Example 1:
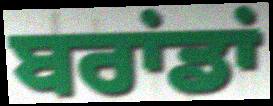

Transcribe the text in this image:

ਬਰਾਂਡਾਂ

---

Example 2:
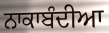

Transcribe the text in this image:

ਨਾਕਾਬੰਦੀਆ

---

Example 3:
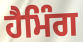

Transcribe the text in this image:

ਹੈਮਿੰਗ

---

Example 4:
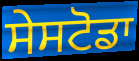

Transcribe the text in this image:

ਸੇਸਟੋਡਾ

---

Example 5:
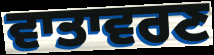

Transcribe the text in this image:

ਵਾਤਾਵਰਣ